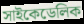
সাইকেডেলিক